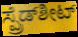
ಸ್ಪ್ರೆಡ್‌ಶೀಟ್